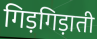
गिड़गिड़ाती